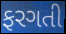
ફરગતી